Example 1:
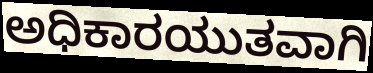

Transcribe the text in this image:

ಅಧಿಕಾರಯುತವಾಗಿ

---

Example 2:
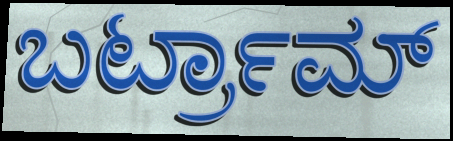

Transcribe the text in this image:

ಬರ್ಟ್ರಾಮ್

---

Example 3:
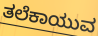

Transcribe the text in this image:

ತಲೆಕಾಯುವ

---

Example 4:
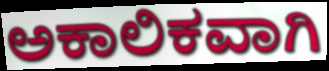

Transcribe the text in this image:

ಅಕಾಲಿಕವಾಗಿ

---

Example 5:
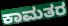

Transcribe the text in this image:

ಕಾಮತರ